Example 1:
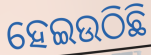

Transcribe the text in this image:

ହେଇଉଠିଛି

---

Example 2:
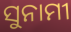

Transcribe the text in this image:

ସୁନାମୀ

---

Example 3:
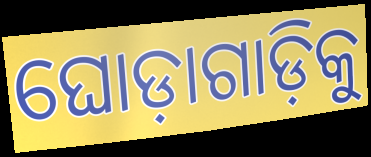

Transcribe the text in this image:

ଘୋଡ଼ାଗାଡ଼ିକୁ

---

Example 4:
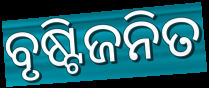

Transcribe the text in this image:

ବୃଷ୍ଟିଜନିତ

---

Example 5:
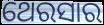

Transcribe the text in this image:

ଥେରସାର